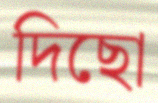
দিছো